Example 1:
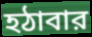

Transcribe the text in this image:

হঠাবার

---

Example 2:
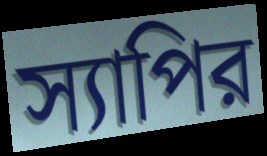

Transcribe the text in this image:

স্যাপির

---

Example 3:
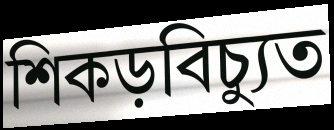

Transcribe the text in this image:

শিকড়বিচ্যুত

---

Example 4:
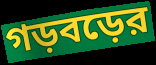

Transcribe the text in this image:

গড়বড়ের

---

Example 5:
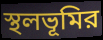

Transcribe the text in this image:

স্থলভূমির